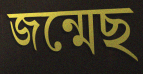
জন্মেছ